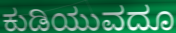
ಕುಡಿಯುವದೂ